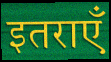
इतराएँ